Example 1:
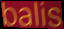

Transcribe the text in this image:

balis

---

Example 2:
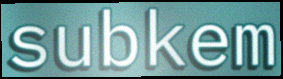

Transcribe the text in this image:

subkem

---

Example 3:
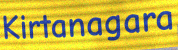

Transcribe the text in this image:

Kirtanagara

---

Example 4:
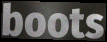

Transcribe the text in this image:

boots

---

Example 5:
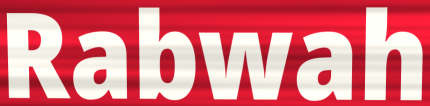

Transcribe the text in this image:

Rabwah